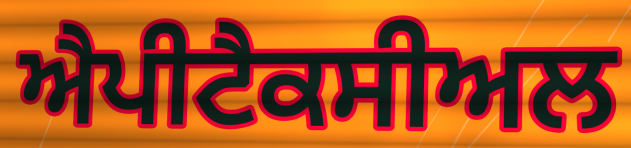
ਐਪੀਟੈਕਸੀਅਲ